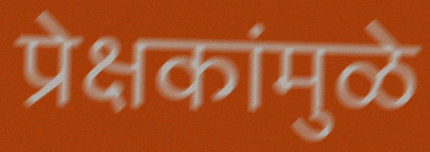
प्रेक्षकांमुळे